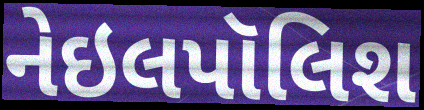
નેઇલપૉલિશ